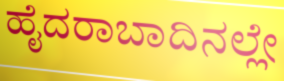
ಹೈದರಾಬಾದಿನಲ್ಲೇ